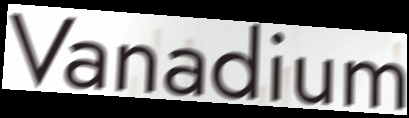
Vanadium